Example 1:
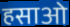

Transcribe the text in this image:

हसाओ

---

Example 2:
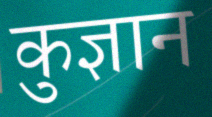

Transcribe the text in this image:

कुज्ञान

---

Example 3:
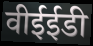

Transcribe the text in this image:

वीईईडी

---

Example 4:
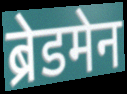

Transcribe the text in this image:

ब्रेडमेन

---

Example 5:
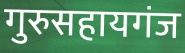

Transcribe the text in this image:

गुरुसहायगंज